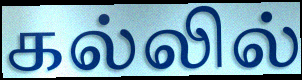
கல்லில்